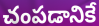
చంపడానికే